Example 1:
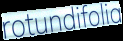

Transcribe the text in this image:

rotundifolia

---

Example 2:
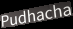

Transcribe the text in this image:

Pudhacha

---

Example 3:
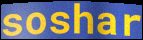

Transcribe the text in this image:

soshar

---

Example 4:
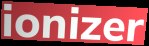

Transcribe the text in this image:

ionizer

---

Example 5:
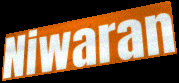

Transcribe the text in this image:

Niwaran